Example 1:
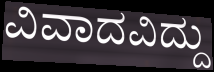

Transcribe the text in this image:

ವಿವಾದವಿದ್ದು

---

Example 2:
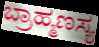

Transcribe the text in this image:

ಬ್ರಾಹ್ಮಣಸ್ಯ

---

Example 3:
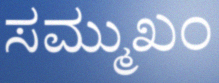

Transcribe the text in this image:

ಸಮ್ಮುಖಂ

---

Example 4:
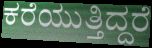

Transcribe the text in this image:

ಕರೆಯುತ್ತಿದ್ದರೆ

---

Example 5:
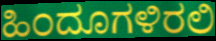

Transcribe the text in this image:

ಹಿಂದೂಗಳಿರಲಿ